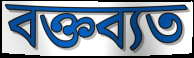
বক্তব্যত